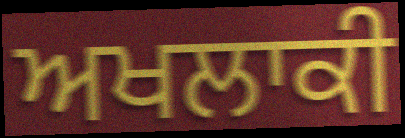
ਅਖਲਾਕੀ